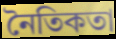
নৈতিকতা